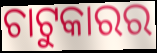
ଚାଟୁକାରର